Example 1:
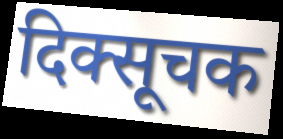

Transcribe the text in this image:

दिक्सूचक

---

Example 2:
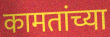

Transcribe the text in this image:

कामतांच्या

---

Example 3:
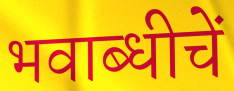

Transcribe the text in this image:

भवाब्धीचें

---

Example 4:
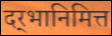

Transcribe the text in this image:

दर्भानिमित्त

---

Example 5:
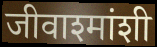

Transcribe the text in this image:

जीवाश्मांशी